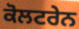
ਕੋਲਟਰੇਨ